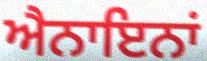
ਐਨਾਇਨਾਂ